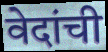
वेदांची